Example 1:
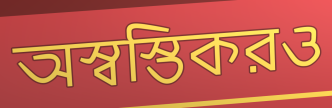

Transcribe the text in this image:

অস্বস্তিকরও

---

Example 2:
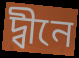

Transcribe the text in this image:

দ্বীনে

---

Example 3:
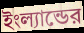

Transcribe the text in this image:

ইংল্য়ান্ডের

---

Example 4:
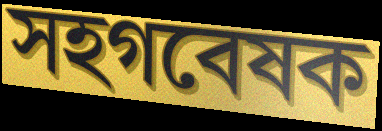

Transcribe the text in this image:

সহগবেষক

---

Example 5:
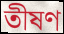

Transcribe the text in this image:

তীষণ